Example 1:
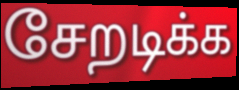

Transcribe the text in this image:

சேறடிக்க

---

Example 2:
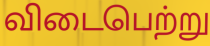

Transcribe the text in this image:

விடைபெற்று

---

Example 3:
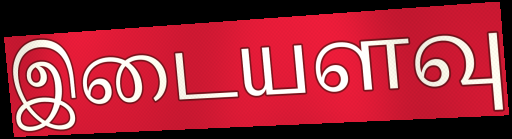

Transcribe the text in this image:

இடையளவு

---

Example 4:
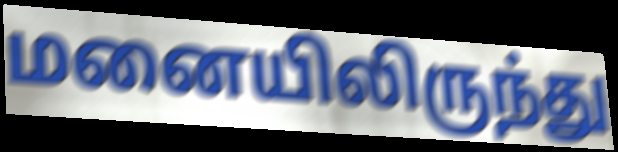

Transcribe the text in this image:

மனையிலிருந்து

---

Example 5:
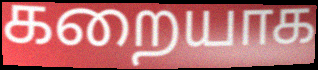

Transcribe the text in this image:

கறையாக